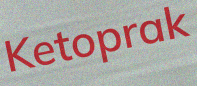
Ketoprak